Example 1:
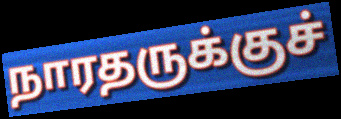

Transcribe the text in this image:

நாரதருக்குச்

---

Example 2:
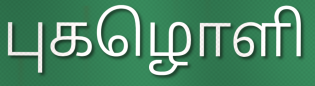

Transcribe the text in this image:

புகழொளி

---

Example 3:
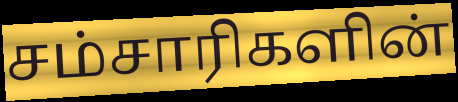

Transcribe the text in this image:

சம்சாரிகளின்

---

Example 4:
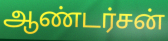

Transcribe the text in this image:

ஆண்டர்சன்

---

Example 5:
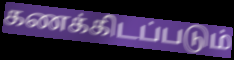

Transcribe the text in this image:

கணக்கிடப்படும்